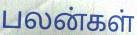
பலன்கள்